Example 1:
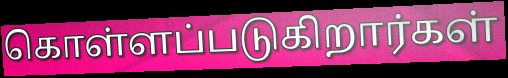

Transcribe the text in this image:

கொள்ளப்படுகிறார்கள்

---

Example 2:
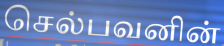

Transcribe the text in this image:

செல்பவனின்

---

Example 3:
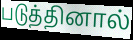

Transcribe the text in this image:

படுத்தினால்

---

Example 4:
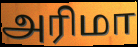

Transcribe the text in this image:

அரிமா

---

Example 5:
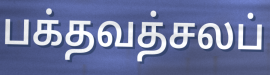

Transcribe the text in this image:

பக்தவத்சலப்